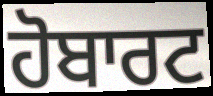
ਹੋਬਾਰਟ